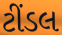
ટીંડલ